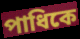
পাধিকে